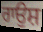
ਰਾਉਸ਼